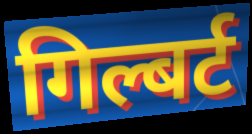
गिल्बर्ट